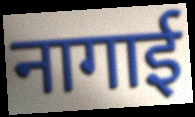
नागाई